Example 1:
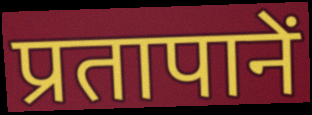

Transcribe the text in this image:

प्रतापानें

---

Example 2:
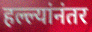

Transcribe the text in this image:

हल्ल्यांनंतर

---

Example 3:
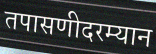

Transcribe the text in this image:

तपासणीदरम्यान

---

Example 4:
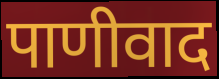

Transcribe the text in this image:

पाणीवाद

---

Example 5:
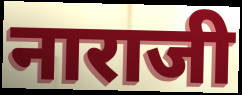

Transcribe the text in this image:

नाराजी